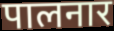
पालनार